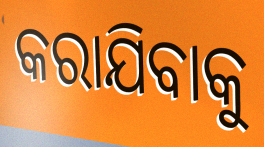
କରାଯିବାକୁ